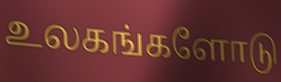
உலகங்களோடு